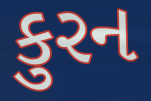
કુરન